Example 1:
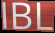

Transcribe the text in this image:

IBL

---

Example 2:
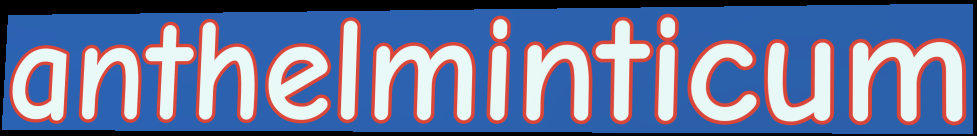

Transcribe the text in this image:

anthelminticum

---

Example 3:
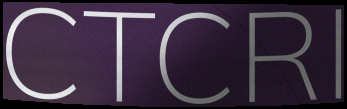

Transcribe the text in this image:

CTCRI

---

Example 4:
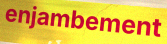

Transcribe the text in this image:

enjambement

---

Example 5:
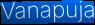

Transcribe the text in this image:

Vanapuja